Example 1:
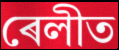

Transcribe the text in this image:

ৰেলীত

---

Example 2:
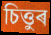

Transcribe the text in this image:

চিত্তুৰ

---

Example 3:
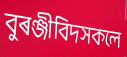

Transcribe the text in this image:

বুৰঞ্জীবিদসকলে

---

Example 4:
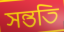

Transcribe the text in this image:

সন্ততি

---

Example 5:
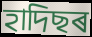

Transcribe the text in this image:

হাদিছৰ